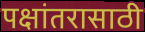
पक्षांतरासाठी